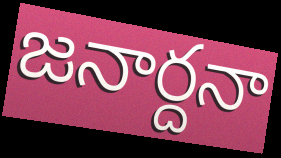
జనార్దనా